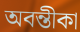
অবন্তীকা